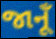
જાનૂઁ